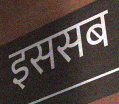
इससब